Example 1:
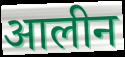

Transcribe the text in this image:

आलीन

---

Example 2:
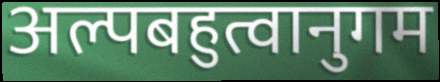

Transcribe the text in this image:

अल्पबहुत्वानुगम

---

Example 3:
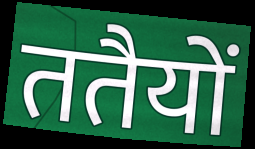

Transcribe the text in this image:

ततैयों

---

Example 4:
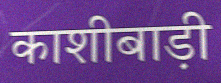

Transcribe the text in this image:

काशीबाड़ी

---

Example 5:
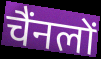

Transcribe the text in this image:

चैंनलों